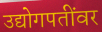
उद्योगपतींवर